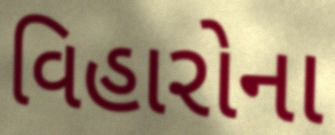
વિહારોના